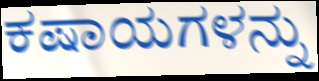
ಕಷಾಯಗಳನ್ನು